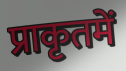
प्राकृतमें